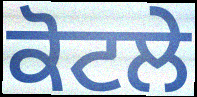
ਕੋਟਲੇ